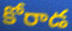
కోరాడ